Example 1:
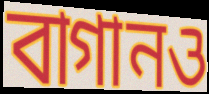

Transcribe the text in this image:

বাগানও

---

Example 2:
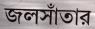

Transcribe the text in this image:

জলসাঁতার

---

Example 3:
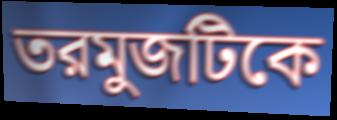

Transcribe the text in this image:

তরমুজটিকে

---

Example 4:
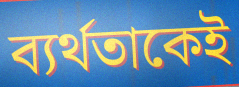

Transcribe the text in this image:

ব্যর্থতাকেই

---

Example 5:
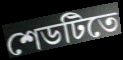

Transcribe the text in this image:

শেডটিতে